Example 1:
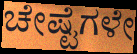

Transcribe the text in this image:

ಚೇಷ್ಟೆಗಳೇ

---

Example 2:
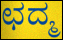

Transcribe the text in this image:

ಛದ್ಮ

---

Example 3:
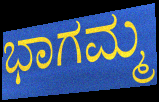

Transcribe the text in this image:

ಭಾಗಮ್ಮ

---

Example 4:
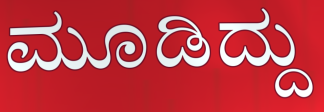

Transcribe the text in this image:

ಮೂಡಿದ್ದು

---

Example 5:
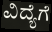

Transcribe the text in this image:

ವಿದ್ಯೆಗೆ